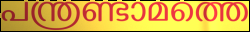
പന്ത്രണ്ടാമത്തെ